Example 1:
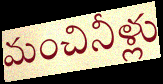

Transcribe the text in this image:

మంచినీళ్లు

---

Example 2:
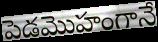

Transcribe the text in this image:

పెడమొహంగానే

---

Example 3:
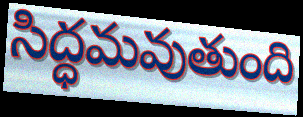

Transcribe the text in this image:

సిద్ధమవుతుంది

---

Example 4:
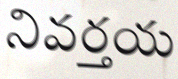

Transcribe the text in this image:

నివర్తయ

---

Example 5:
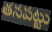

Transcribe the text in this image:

తనపట్టు